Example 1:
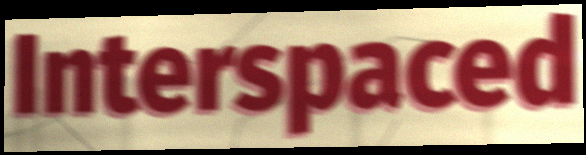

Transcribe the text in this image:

Interspaced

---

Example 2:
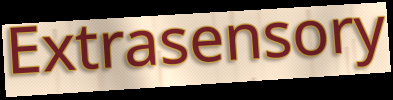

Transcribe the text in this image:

Extrasensory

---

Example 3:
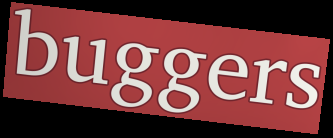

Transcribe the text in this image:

buggers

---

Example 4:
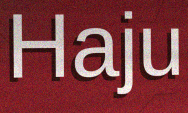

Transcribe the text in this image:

Haju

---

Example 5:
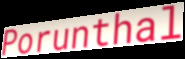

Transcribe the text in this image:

Porunthal